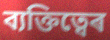
ব্যক্তিত্বেৰ